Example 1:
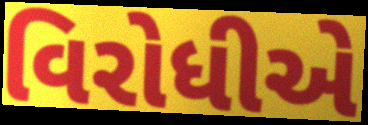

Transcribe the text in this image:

વિરોધીએ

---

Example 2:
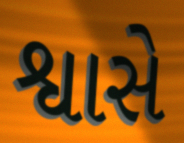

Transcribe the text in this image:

શ્વાસે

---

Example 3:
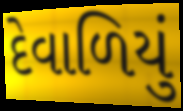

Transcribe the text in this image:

દેવાળિયું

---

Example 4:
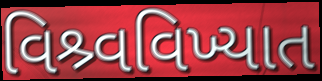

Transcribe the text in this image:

વિશ્ર્વવિખ્યાત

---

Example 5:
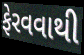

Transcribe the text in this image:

ફેરવવાથી